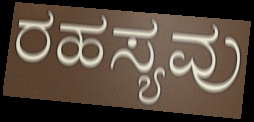
ರಹಸ್ಯವು